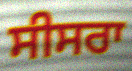
ਸੀਸਰਾ